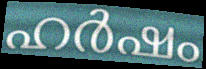
ഹർഷം